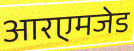
आरएमजेड